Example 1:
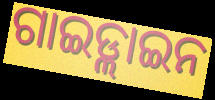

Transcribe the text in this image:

ଗାଇଡ୍ଲାଇନ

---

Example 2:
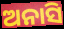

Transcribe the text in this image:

ଅନାସି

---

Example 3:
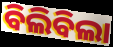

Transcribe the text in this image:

ବିଲିବିଲା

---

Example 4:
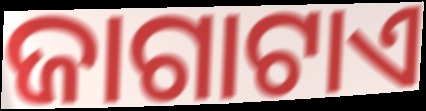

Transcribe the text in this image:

ଜାଗାଟାଏ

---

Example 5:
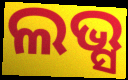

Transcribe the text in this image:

ଲଭ୍ସ